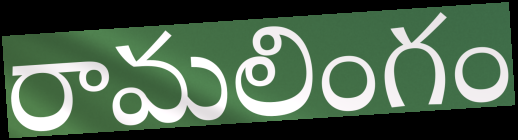
రామలింగం